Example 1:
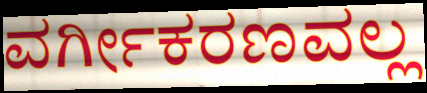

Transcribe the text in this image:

ವರ್ಗೀಕರಣವಲ್ಲ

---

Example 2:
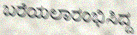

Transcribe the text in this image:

ಬರೆಯಲಾರಂಭಿಸಿದ್ದ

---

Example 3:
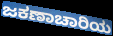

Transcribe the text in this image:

ಜಕಣಾಚಾರಿಯ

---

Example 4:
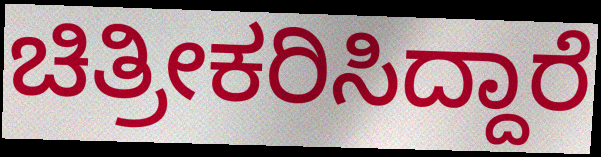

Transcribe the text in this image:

ಚಿತ್ರೀಕರಿಸಿದ್ದಾರೆ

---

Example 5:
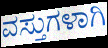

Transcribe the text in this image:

ವಸ್ತುಗಳಾಗಿ